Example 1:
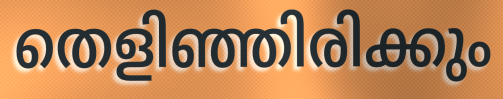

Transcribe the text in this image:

തെളിഞ്ഞിരിക്കും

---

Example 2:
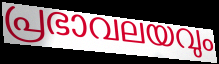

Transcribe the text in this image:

പ്രഭാവലയവും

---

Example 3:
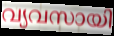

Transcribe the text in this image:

വ്യവസായി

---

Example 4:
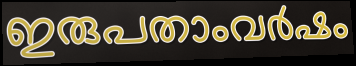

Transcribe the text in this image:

ഇരുപതാംവർഷം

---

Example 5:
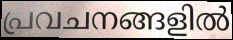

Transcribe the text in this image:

പ്രവചനങ്ങളിൽ